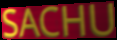
SACHU